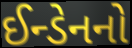
ઈન્ડેનનો